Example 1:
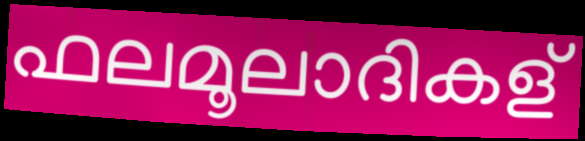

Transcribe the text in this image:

ഫലമൂലാദികള്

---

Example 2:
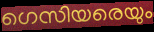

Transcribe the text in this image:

ഗെസിയരെയും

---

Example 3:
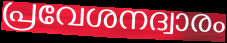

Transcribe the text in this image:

പ്രവേശനദ്വാരം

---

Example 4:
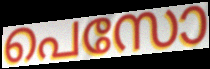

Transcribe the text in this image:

പെസോ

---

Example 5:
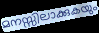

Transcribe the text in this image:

മനസ്സിലാക്കുകയും